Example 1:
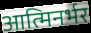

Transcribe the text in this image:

आत्मिनर्भर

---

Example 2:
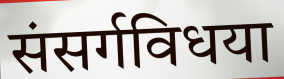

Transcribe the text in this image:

संसर्गविधया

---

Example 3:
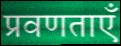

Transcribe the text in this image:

प्रवणताएँ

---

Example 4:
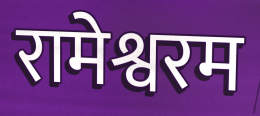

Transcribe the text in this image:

रामेश्वरम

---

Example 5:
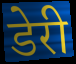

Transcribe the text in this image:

डेरी